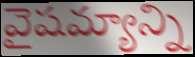
వైషమ్యాన్ని